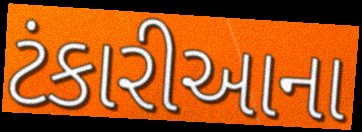
ટંકારીઆના